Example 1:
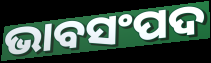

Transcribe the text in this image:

ଭାବସଂପଦ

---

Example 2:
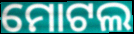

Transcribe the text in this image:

ମୋଟଲ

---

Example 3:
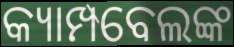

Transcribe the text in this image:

କ୍ୟାମ୍ପବେଲଙ୍କ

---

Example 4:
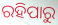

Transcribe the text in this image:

ରହିପାରୁ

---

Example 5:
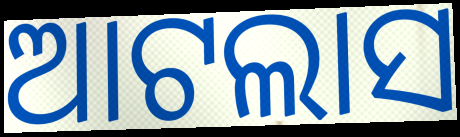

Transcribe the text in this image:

ଆଟଲାସ